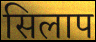
सिलाप